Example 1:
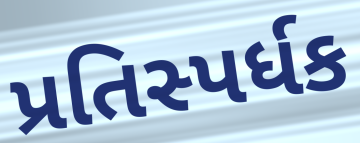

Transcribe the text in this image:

પ્રતિસ્પર્ધક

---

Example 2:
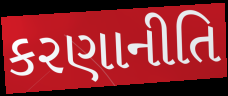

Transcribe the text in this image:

કરણાનીતિ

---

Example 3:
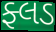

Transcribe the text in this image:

ફ્લડ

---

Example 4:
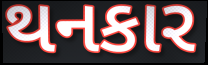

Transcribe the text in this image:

થનકાર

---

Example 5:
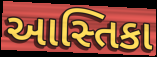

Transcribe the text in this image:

આસ્તિકા